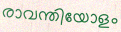
രാവന്തിയോളം